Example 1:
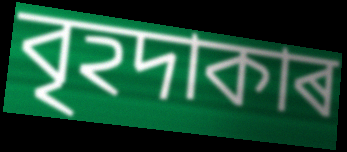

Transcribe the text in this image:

বৃহদাকাৰ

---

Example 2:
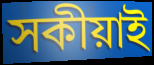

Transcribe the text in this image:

সকীয়াই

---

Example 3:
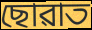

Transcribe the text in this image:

ছোৱাত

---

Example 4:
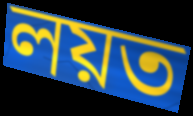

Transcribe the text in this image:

লয়ত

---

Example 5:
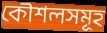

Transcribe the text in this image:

কৌশলসমূহ